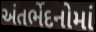
અંતર્ભેદનોમાં